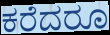
ಕರೆದರೂ